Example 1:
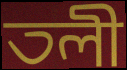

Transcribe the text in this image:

তলী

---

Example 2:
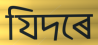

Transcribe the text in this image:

যিদৰে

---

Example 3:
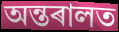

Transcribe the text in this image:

অন্তৰালত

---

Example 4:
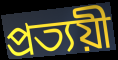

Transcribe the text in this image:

প্ৰত্যয়ী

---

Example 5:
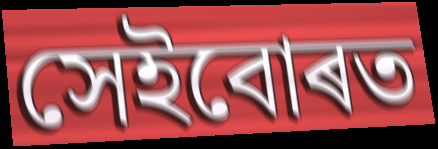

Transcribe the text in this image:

সেইবোৰত